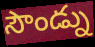
సౌండ్ను